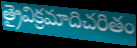
త్రైవిక్రమాదిచరితం